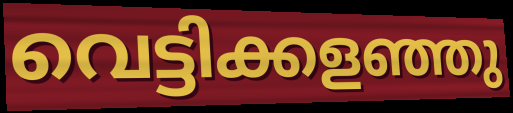
വെട്ടിക്കളഞ്ഞു